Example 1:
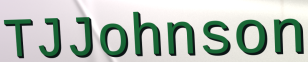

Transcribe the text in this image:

TJJohnson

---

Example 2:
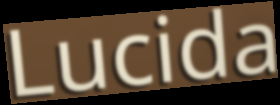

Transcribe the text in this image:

Lucida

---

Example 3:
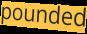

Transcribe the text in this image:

pounded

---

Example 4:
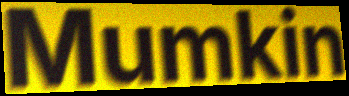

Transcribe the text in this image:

Mumkin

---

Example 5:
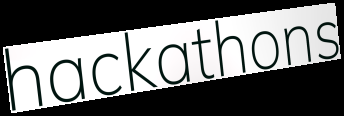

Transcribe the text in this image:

hackathons